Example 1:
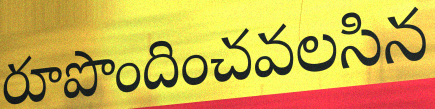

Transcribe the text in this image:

రూపొందించవలసిన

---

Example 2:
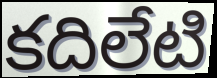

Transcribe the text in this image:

కదిలేటి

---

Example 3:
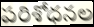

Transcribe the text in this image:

పరిశోధనల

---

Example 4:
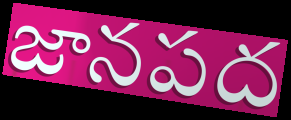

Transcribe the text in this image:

జానపద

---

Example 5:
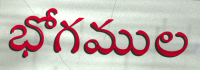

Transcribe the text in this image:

భోగముల